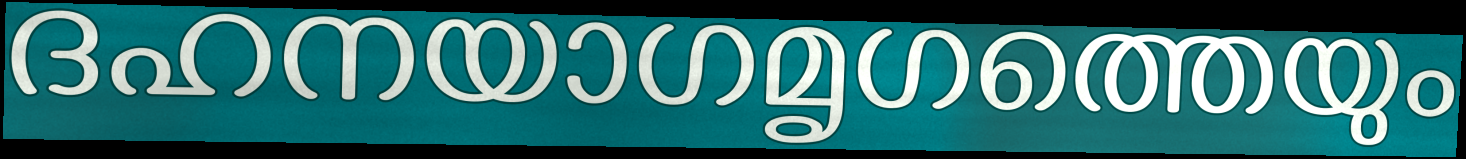
ദഹനയാഗമൃഗത്തെയും